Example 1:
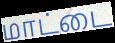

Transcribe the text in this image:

மாட்டை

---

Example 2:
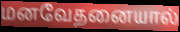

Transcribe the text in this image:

மனவேதனையால்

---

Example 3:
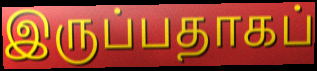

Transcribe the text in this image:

இருப்பதாகப்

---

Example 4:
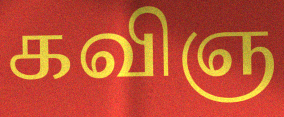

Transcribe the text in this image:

கவிஞ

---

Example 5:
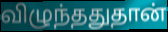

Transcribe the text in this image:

விழுந்ததுதான்